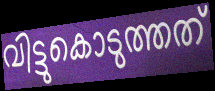
വിട്ടുകൊടുത്തത്